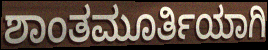
ಶಾಂತಮೂರ್ತಿಯಾಗಿ